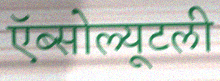
ऍब्सोल्यूटली